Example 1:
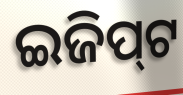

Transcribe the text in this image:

ଇଜିପ୍‌ଟ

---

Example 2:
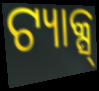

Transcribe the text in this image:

ଟ୍ୟାକ୍ସ୍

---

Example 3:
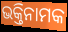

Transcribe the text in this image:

ଭକ୍ତିନାମକ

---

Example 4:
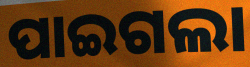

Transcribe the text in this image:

ପାଇଗଲା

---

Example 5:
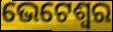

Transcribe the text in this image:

ଭେଟେଶ୍ୱର